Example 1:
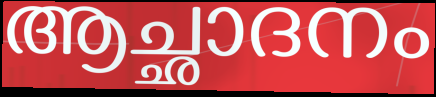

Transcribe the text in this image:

ആച്ഛാദനം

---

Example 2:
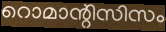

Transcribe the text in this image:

റൊമാന്റിസിസം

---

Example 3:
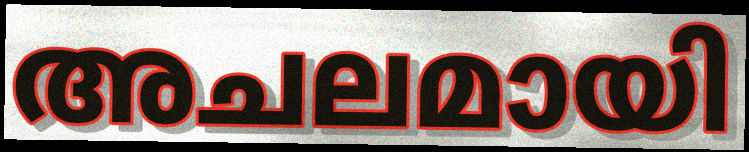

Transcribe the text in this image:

അചലമായി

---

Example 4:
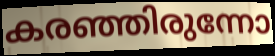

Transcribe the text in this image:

കരഞ്ഞിരുന്നോ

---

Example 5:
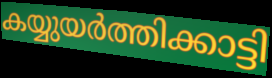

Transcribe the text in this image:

കയ്യുയർത്തിക്കാട്ടി